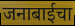
जनाबाईचा